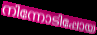
നിന്നോടിപ്പോയ